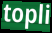
topli